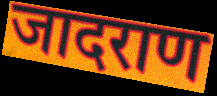
जादराण